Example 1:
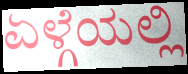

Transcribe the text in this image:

ಏಳ್ಗೆಯಲ್ಲಿ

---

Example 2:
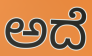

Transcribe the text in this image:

ಅದೆ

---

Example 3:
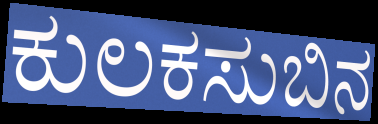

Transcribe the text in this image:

ಕುಲಕಸುಬಿನ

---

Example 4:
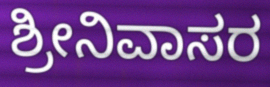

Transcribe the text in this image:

ಶ್ರೀನಿವಾಸರ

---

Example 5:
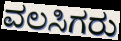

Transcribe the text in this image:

ವಲಸಿಗರು